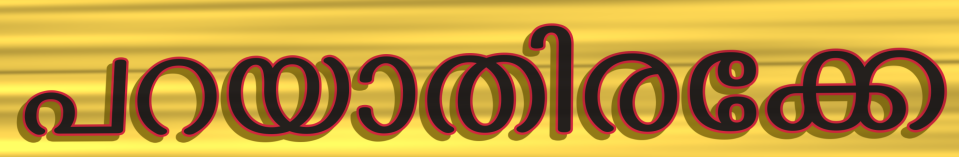
പറയാതിരക്കേ